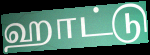
ஹாட்டு